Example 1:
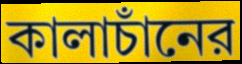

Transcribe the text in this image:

কালাচাঁনের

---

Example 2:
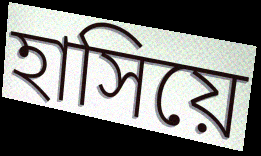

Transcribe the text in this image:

হাসিয়ে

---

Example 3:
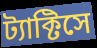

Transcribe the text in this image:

ট্যাক্টিসে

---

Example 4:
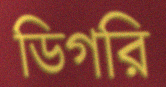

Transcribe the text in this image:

ডিগরি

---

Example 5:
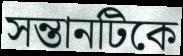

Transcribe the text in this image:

সন্তানটিকে